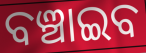
ବଞ୍ଚାଇବ